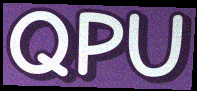
QPU